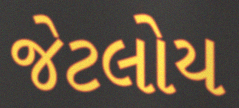
જેટલોય